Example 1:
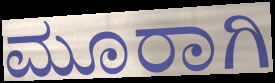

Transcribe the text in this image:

ಮೂರಾಗಿ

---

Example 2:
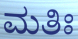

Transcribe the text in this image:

ಮತಿಃ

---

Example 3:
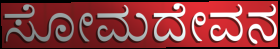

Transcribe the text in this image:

ಸೋಮದೇವನ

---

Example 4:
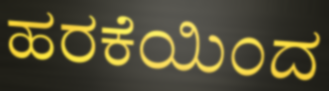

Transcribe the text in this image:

ಹರಕೆಯಿಂದ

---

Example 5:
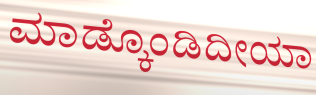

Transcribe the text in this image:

ಮಾಡ್ಕೊಂಡಿದೀಯಾ